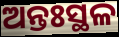
ଅନ୍ତଃସ୍ଥଳ